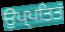
ਉਪ੍ਪਤਿਤਂ